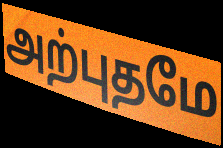
அற்புதமே